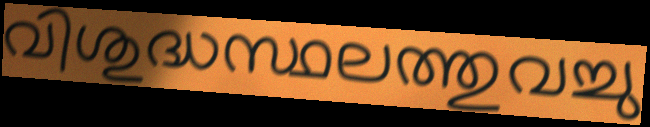
വിശുദ്ധസ്ഥലത്തുവച്ചു